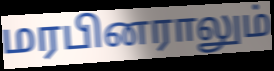
மரபினராலும்